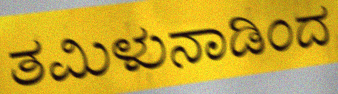
ತಮಿಳುನಾಡಿಂದ